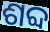
ଶବ୍ଦ